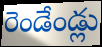
రెండేండ్లు